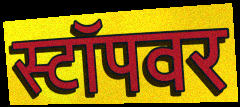
स्टॉपवर